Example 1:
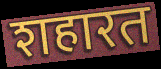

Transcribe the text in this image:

शहारत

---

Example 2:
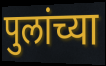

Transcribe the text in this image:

पुलांच्या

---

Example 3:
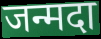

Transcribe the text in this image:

जन्मदा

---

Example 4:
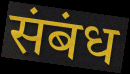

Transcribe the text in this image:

संबंध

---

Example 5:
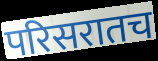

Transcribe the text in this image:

परिसरातच